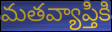
మతవ్యాప్తికి